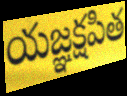
యజ్ఞక్షపిత